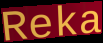
Reka